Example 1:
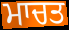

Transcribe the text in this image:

ਮਾਚਤ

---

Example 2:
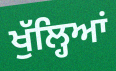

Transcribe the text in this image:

ਖੁੱਲ੍ਹਿਆਂ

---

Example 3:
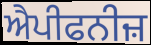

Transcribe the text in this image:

ਐਪੀਫਨੀਜ਼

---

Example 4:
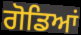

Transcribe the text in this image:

ਗੋਡਿਆਂ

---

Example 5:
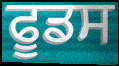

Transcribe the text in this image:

ਫੂਡਸ